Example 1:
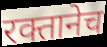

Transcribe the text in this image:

रक्तानेच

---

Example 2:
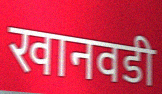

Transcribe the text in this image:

खानवडी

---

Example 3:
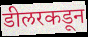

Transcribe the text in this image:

डीलरकडून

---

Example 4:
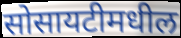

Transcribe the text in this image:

सोसायटीमधील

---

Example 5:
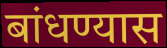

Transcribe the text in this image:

बांधण्यास